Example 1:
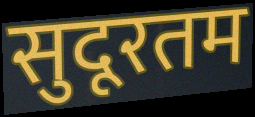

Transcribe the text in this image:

सुदूरतम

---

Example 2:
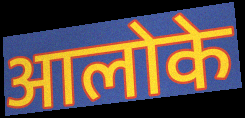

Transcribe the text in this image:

आलोके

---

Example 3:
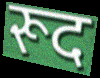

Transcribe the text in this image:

रूद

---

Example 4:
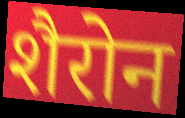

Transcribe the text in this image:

शैरोन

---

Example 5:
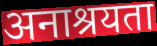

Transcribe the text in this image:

अनाश्रयता